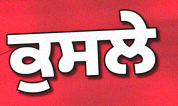
ਕੁਸਲੇ